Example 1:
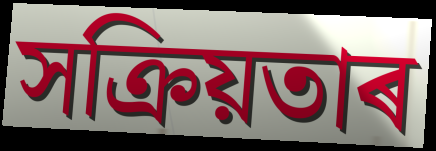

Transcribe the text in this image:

সক্ৰিয়তাৰ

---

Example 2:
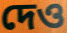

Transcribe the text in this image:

দেও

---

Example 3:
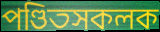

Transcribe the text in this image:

পণ্ডিতসকলক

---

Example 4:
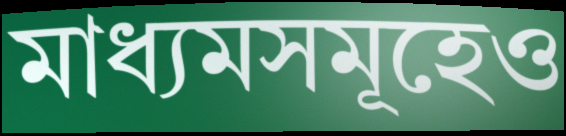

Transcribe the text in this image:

মাধ্য়মসমূহেও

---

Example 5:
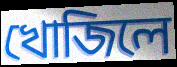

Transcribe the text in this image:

খোজিলে